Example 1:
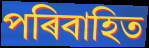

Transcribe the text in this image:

পৰিবাহিত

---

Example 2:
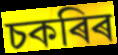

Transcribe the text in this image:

চকৰিৰ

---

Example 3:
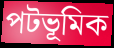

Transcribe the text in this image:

পটভূমিক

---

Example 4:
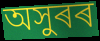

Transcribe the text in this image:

অসুৰৰ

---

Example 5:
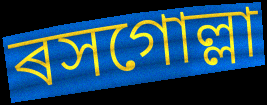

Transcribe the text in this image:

ৰসগোল্লা